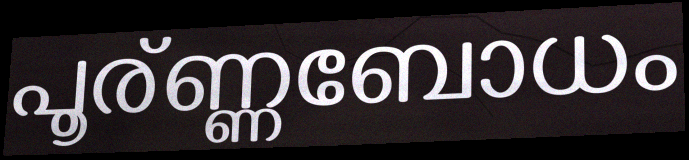
പൂര്ണ്ണബോധം